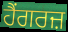
ਹੈਂਗਰਜ਼